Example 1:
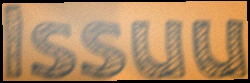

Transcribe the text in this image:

Issuu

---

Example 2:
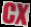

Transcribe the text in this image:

cx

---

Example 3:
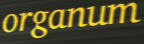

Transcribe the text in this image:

organum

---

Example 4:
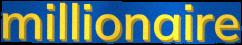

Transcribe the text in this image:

millionaire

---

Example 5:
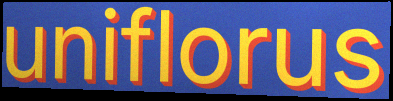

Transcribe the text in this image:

uniflorus